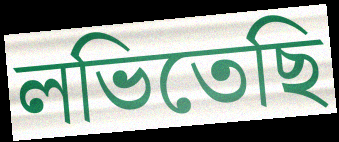
লভিতেছি